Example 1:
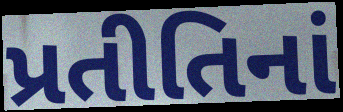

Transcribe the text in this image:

પ્રતીતિનાં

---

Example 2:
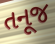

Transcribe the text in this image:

તનૂજ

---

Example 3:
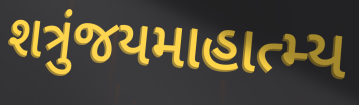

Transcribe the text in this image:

શત્રુંજયમાહાત્મ્ય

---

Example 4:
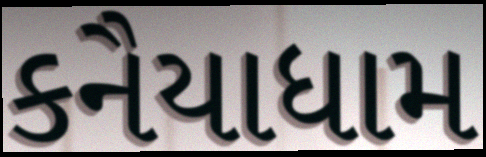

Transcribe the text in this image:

કનૈયાધામ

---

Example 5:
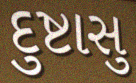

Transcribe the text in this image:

દુષ્ટાસુ